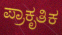
ಪ್ರಾಕೃತಿಕ